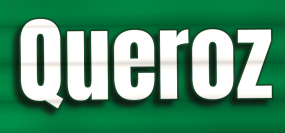
Queroz